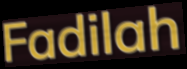
Fadilah